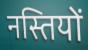
नस्तियों